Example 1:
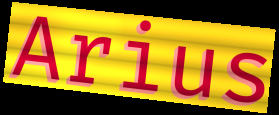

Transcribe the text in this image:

Arius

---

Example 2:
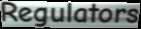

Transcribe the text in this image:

Regulators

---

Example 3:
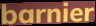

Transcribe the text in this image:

barnier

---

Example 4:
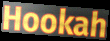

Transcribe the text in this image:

Hookah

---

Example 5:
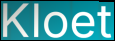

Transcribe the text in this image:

Kloet